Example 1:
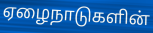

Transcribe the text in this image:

ஏழைநாடுகளின்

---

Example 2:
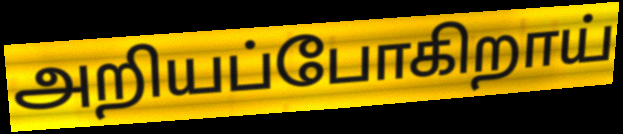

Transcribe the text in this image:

அறியப்போகிறாய்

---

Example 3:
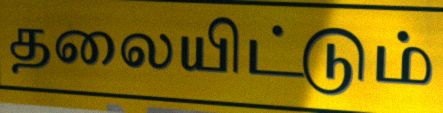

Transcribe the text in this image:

தலையிட்டும்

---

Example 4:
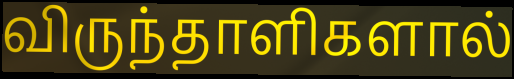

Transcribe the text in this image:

விருந்தாளிகளால்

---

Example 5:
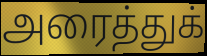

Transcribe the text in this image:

அரைத்துக்